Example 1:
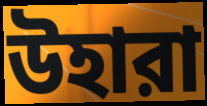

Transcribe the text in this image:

উহারা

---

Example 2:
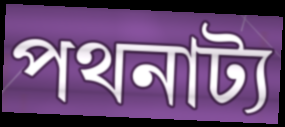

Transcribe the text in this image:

পথনাট্য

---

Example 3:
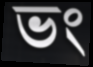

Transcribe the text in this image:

ভং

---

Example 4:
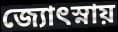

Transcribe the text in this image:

জ্যোৎস্নায়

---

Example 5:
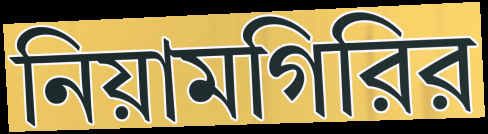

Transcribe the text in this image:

নিয়ামগিরির